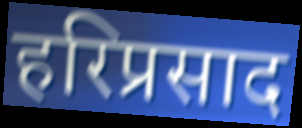
हरिप्रसाद